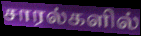
சாரல்களில்